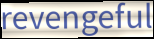
revengeful